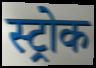
स्ट्रोक